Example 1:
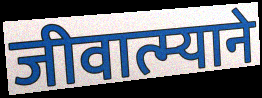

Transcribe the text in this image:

जीवात्म्याने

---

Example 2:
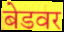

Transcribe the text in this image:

बेडवर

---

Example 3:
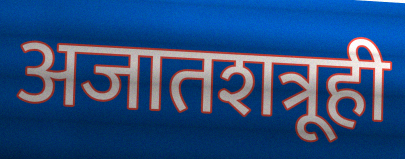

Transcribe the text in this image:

अजातशत्रूही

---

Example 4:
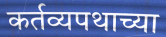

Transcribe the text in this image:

कर्तव्यपथाच्या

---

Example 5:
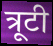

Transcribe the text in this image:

त्रूटी